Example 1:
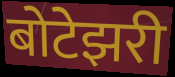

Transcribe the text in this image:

बोटेझरी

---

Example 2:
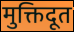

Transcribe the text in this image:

मुक्तिदूत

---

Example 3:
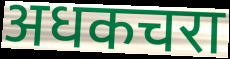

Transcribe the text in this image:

अधकचरा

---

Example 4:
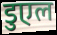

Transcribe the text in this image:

डुएल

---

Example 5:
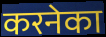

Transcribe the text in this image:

करनेका